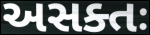
અસક્તઃ